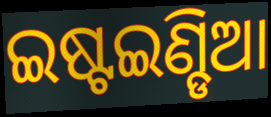
ଇଷ୍ଟଇଣ୍ଡିଆ